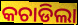
କଚାଡିଲା